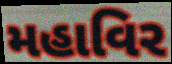
મહાવિર